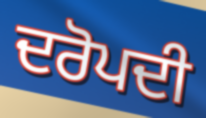
ਦਰੋਪਦੀ